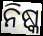
ନିଷ୍କ